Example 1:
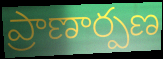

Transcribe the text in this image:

ప్రాణార్పణ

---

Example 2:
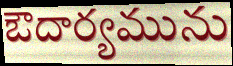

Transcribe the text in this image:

ఔదార్యమును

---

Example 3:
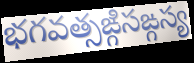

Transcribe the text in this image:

భగవత్సఙ్గిసఙ్గస్య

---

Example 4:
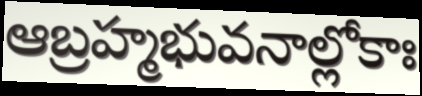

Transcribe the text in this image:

ఆబ్రహ్మభువనాల్లోకాః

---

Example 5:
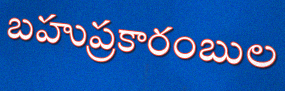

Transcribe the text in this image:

బహుప్రకారంబుల